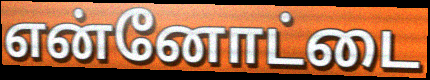
என்னோட்டை